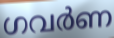
ഗവർണ